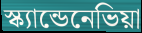
স্ক্যান্ডেনেভিয়া